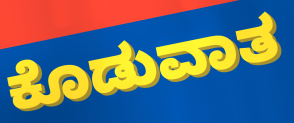
ಕೊಡುವಾತ